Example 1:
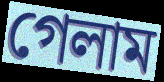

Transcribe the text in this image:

গেলাম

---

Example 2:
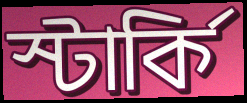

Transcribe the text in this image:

স্টার্কি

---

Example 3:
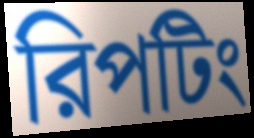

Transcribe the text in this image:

রিপটিং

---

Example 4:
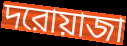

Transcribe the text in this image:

দরোয়াজা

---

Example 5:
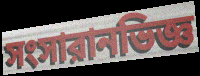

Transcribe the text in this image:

সংসারানভিজ্ঞ